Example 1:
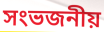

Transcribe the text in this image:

সংভজনীয়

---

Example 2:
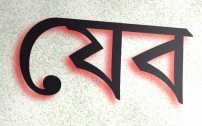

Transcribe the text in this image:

যেব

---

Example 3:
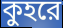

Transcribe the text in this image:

কুহরে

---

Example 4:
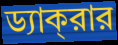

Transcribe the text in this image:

ড্যাক্‌রার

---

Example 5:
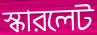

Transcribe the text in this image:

স্কারলেট